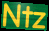
Ntz